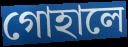
গোহালে